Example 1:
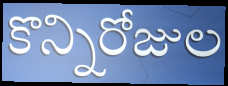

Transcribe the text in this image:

కొన్నిరోజుల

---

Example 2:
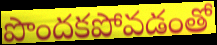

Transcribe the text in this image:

పొందకపోవడంతో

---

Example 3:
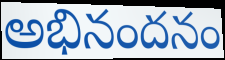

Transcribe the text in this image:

అభినందనం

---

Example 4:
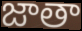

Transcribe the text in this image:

జాతా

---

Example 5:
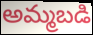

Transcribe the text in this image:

అమ్మబడి